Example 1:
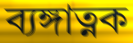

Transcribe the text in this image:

ব্যঙ্গাত্নক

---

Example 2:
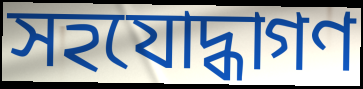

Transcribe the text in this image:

সহযোদ্ধাগণ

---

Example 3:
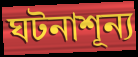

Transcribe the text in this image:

ঘটনাশূন্য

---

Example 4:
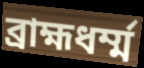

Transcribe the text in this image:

ব্রাহ্মধর্ম্ম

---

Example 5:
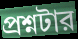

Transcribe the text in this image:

প্রশ্নটার